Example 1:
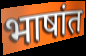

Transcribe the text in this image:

भाषांत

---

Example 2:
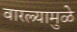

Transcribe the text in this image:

वारल्यामुळे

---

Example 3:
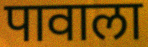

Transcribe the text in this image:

पावाला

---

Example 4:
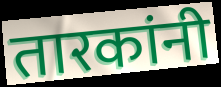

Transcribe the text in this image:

तारकांनी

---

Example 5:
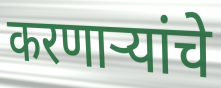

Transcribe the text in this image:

करणाऱ्यांचे